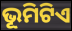
ଭୂମିଟିଏ